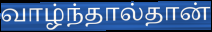
வாழ்ந்தால்தான்